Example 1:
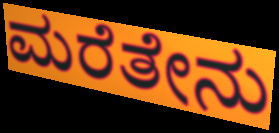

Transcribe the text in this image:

ಮರೆತೇನು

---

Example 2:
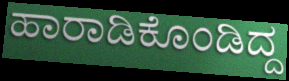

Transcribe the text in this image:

ಹಾರಾಡಿಕೊಂಡಿದ್ದ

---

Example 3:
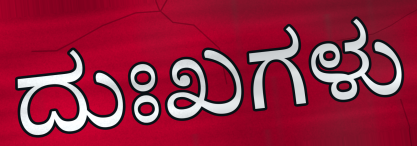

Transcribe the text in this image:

ದುಃಖಗಳು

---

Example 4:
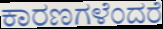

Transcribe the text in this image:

ಕಾರಣಗಳೆಂದರೆ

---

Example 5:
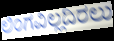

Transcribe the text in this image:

ಲಿಂಗವಿಲ್ಲದಿರಲು